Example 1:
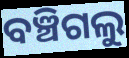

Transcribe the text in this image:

ବଞ୍ଚିଗଲୁ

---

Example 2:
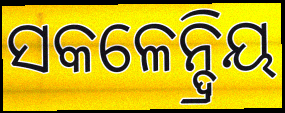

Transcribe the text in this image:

ସକଳେନ୍ଦ୍ରିୟ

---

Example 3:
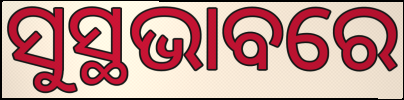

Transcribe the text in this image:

ସୁସ୍ଥଭାବରେ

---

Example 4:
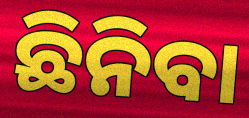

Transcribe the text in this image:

ଛିନିବା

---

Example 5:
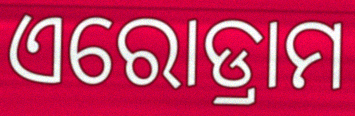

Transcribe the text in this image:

ଏରୋଡ୍ରାମ